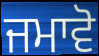
ਜਮਾਵੋ